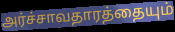
அர்ச்சாவதாரத்தையும்